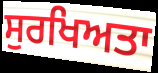
ਸੁਰਖਿਅਤਾ